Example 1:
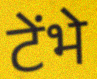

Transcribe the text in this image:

टेंभे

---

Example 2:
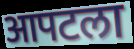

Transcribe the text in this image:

आपटला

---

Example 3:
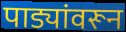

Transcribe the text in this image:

पाड्यांवरून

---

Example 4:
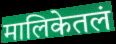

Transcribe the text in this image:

मालिकेतलं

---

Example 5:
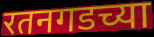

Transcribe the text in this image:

रतनगडच्या